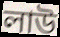
লাউ